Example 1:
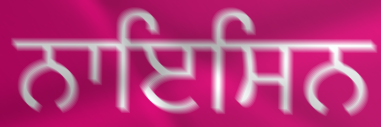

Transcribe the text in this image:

ਨਾਇਸਿਨ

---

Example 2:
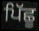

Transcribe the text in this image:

ਪਿੱਛੂ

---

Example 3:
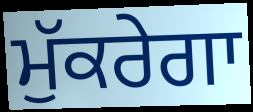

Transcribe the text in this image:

ਮੁੱਕਰੇਗਾ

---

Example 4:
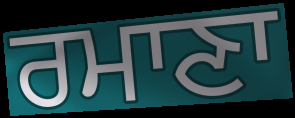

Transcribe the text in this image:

ਰਮਾਣਾ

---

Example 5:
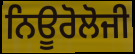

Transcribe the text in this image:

ਨਿਊਰੋਲੋਜੀ